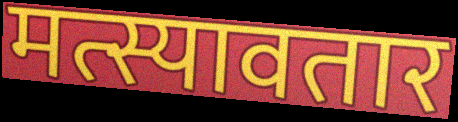
मत्स्यावतार